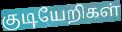
குடியேறிகள்